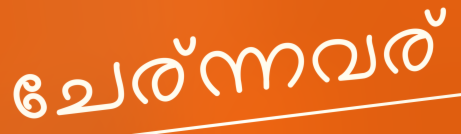
ചേര്ന്നവര്